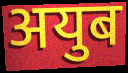
अयुब